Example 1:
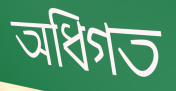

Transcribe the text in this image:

অধিগত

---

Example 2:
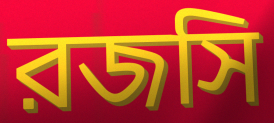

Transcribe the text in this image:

রজসি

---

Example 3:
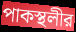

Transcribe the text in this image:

পাকস্থলীর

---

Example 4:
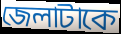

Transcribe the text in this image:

জেলাটাকে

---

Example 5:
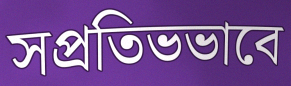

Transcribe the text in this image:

সপ্রতিভভাবে